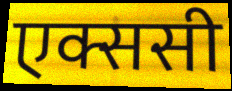
एक्ससी